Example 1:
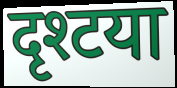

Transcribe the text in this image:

दृश्टया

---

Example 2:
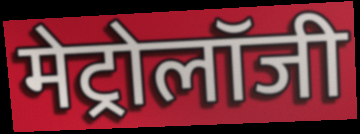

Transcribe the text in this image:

मेट्रोलॉजी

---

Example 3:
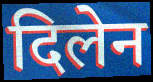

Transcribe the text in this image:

दिलेन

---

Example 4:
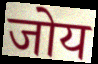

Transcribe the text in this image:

जोय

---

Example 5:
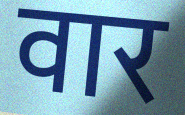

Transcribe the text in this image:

वार